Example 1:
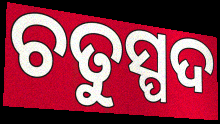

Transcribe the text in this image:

ଚତୁସ୍ପଦ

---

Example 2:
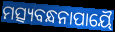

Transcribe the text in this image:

ମତ୍ସ୍ୟବନ୍ଧନାପାୟୈ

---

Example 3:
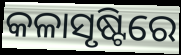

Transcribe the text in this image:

କଳାସୃଷ୍ଟିରେ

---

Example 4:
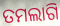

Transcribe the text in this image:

ତମଲାଗି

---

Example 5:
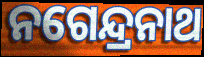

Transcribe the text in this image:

ନଗେନ୍ଦ୍ରନାଥ